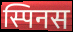
स्पिनस